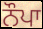
ਨੌਪਾ